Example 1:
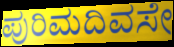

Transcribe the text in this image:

ಪುರಿಮದಿವಸೇ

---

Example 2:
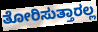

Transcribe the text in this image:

ತೋರಿಸುತ್ತಾರಲ್ಲ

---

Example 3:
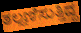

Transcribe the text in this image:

ತಲ್ಲಣಿಸುತ್ತಿದ್ದ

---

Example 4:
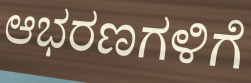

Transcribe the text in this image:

ಆಭರಣಗಳಿಗೆ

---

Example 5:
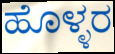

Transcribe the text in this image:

ಹೊಳ್ಳರ